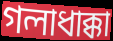
গলাধাক্কা